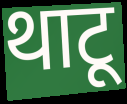
थाटू